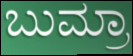
ಬುಮ್ರಾ